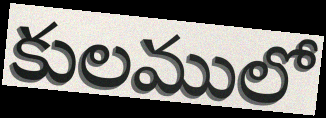
కులములో